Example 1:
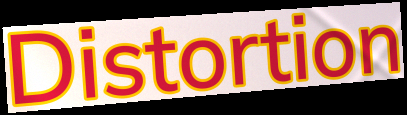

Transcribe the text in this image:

Distortion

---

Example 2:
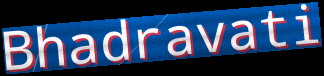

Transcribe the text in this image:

Bhadravati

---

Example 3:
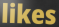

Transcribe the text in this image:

likes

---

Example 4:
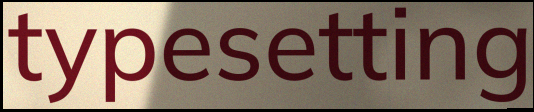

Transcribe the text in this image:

typesetting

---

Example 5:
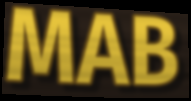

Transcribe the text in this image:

MAB